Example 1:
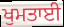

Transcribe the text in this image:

ਖੁਮਤਾਈ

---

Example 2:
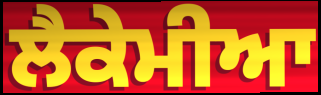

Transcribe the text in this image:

ਲੈਕੇਮੀਆ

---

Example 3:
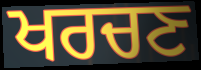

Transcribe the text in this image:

ਖਰਚਣ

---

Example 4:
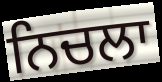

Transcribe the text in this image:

ਨਿਚਲਾ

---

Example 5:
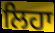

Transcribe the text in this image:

ਲਿਹਾ